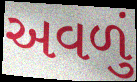
અવળું